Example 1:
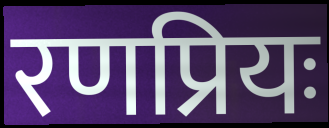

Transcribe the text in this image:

रणप्रियः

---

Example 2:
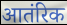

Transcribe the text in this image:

आतंरिक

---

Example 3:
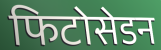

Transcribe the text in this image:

फिटोसेडन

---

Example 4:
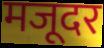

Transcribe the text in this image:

मजूदर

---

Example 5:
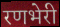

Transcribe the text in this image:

रणभेरी